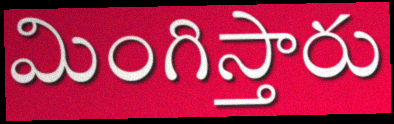
మింగిస్తారు